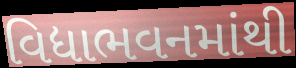
વિદ્યાભવનમાંથી